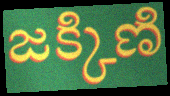
జక్కిణి